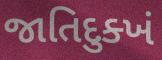
જાતિદુક્ખં